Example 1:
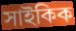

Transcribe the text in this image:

সাইকিক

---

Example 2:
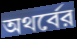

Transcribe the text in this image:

অথর্বের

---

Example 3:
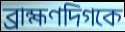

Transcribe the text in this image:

ব্রাহ্মণদিগকে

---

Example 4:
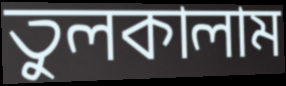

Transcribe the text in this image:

তুলকালাম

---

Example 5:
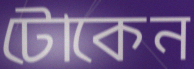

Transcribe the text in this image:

টোকেন